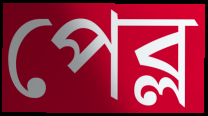
পেব্ল